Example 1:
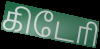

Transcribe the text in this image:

கிடேரி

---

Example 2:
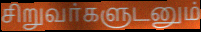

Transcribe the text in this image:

சிறுவர்களுடனும்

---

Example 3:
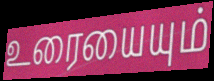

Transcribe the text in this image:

உரையையும்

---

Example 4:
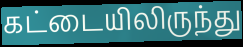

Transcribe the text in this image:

கட்டையிலிருந்து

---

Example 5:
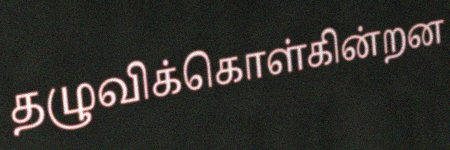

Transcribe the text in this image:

தழுவிக்கொள்கின்றன